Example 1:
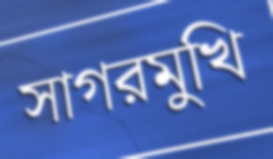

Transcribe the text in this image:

সাগরমুখি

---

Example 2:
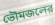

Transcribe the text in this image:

ভৌমজলের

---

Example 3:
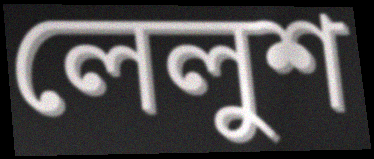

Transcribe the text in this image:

লেলুশ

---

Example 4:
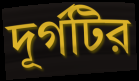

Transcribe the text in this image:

দূর্গটির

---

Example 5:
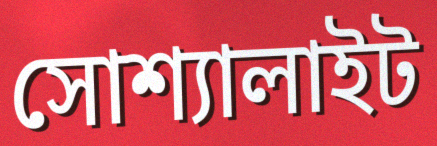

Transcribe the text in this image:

সোশ্যালাইট